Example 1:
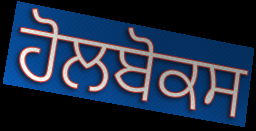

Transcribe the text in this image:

ਹੋਲਬੋਕਸ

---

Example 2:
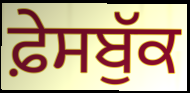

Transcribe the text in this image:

ਫ਼ੇਸਬੁੱਕ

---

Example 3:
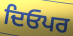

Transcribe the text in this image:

ਦਿਓਪਰ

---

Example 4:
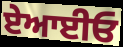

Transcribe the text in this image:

ਏਆਈਓ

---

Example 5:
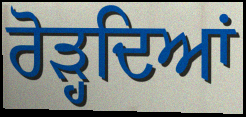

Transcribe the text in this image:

ਰੋੜ੍ਹਦਿਆਂ